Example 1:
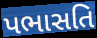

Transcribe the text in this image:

પભાસતિ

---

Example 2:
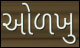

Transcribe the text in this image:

ઓળખુ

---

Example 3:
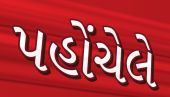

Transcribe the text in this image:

પહોંચેલે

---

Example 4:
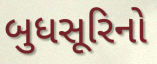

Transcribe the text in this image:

બુધસૂરિનો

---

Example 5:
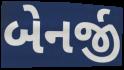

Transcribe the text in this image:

બેનર્જી